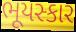
ભૂયસ્કાર